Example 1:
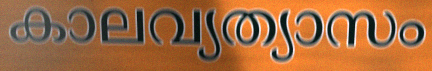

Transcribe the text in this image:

കാലവ്യത്യാസം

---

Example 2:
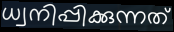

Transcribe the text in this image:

ധ്വനിപ്പിക്കുന്നത്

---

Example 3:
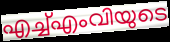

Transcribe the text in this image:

എച്ച്എംവിയുടെ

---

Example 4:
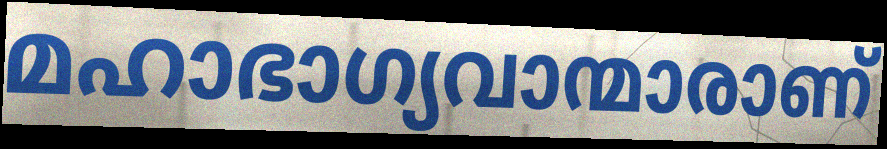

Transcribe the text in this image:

മഹാഭാഗ്യവാന്മാരാണ്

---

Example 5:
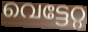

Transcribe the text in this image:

വെട്ടേറ്റ